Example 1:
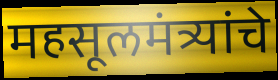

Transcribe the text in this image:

महसूलमंत्र्यांचे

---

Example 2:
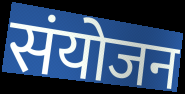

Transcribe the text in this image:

संयोजन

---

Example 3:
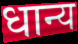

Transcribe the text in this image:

धान्य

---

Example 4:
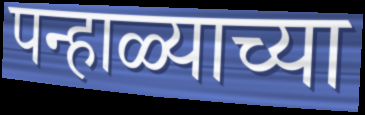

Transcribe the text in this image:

पन्हाळ्याच्या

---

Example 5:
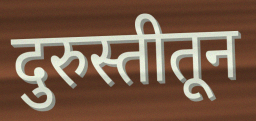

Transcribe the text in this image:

दुरुस्तीतून